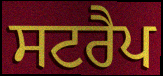
ਸਟਰੈਪ